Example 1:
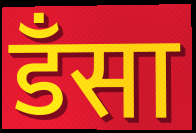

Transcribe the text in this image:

डँसा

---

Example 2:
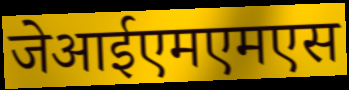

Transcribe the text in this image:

जेआईएमएमएस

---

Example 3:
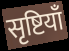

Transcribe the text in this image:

सृष्टियाँ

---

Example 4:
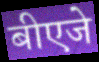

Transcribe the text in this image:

बीएजे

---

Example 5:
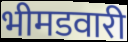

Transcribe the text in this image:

भीमडवारी